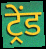
ट्रेंड